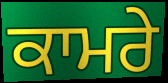
ਕਾਮਰੇ